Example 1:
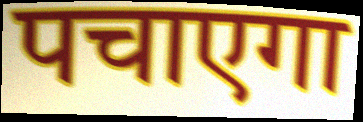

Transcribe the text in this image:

पचाएगा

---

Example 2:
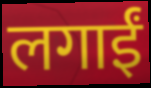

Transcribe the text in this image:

लगाईं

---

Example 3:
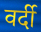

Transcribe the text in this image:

वर्दी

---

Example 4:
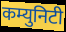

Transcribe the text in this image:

कम्युनिटी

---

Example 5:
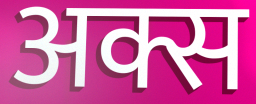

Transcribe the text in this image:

अक्स